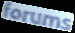
forums